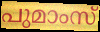
പുമാംസ്